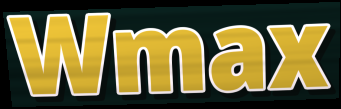
Wmax